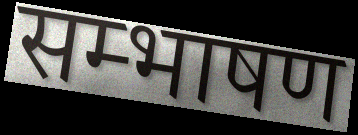
सम्भाषण